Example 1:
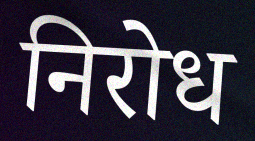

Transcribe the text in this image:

निरोध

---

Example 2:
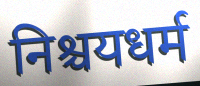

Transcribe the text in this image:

निश्चयधर्म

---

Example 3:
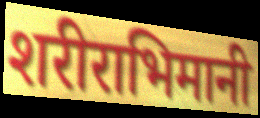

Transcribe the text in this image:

शरीराभिमानी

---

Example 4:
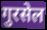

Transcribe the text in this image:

गुरसेल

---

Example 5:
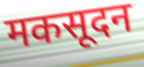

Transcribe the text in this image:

मकसूदन